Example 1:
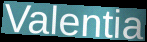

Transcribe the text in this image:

Valentia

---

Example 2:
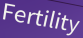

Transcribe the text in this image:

Fertility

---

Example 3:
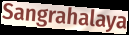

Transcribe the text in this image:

Sangrahalaya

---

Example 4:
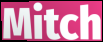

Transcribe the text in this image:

Mitch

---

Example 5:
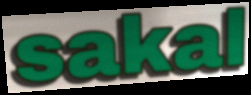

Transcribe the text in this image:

sakal